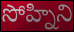
సోహ్నిని